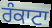
ਰੰਕਾਟਾ